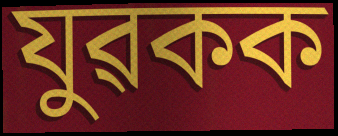
যুৱকক